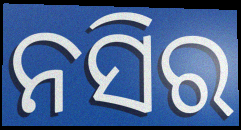
ନସିର